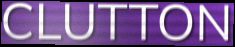
CLUTTON